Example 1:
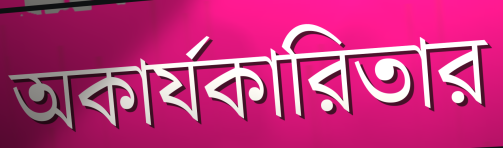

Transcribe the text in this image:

অকার্যকারিতার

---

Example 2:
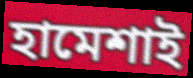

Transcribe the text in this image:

হামেশাই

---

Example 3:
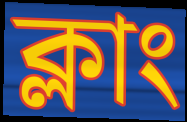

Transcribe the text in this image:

ক্লাং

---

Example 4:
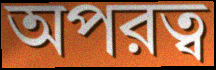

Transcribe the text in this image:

অপরত্ব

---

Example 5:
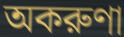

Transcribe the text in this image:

অকরুণা